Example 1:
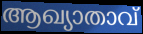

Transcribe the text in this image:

ആഖ്യാതാവ്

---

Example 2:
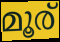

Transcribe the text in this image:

മൂര്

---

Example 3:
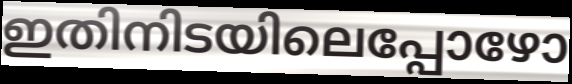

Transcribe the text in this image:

ഇതിനിടയിലെപ്പോഴോ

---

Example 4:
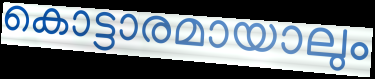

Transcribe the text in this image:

കൊട്ടാരമായാലും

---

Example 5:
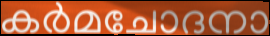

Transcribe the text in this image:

കർമചോദനാ